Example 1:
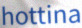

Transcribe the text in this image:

hottina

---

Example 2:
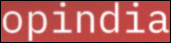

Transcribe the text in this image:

opindia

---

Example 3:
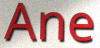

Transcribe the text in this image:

Ane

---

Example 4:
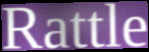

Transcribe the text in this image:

Rattle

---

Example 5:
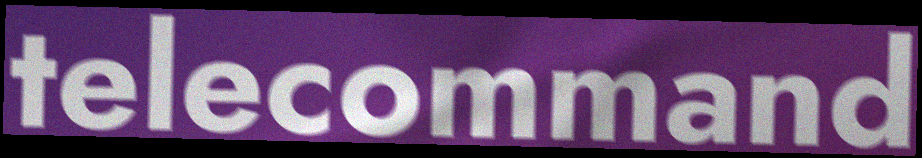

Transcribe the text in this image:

telecommand